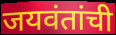
जयवंतांची